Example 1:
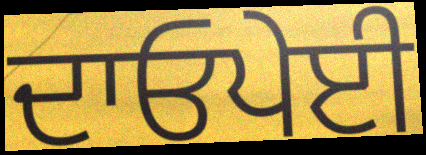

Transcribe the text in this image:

ਦਾਓਪੇਈ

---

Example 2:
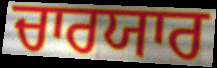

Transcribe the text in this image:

ਚਾਰਯਾਰ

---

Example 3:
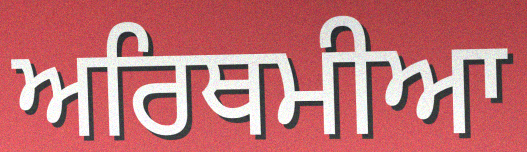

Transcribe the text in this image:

ਅਰਿਥਮੀਆ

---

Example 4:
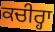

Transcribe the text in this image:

ਕਚੀਰ੍ਹਾ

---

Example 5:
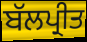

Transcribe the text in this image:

ਬੱਲਪ੍ਰੀਤ